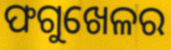
ଫଗୁଖେଳର